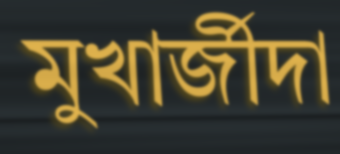
মুখার্জীদা